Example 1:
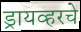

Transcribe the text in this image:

ड्रायव्हरचे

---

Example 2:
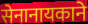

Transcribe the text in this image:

सेनानायकाने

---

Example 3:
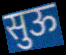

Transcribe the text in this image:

सुऊ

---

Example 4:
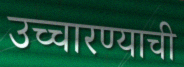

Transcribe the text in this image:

उच्चारण्याची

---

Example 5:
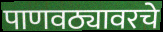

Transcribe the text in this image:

पाणवठ्यावरचे